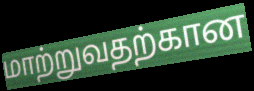
மாற்றுவதற்கான